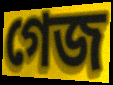
গেজ